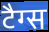
टैग्स